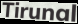
Tirunal